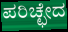
ಪರಿಚ್ಛೇದ